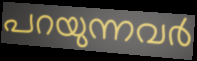
പറയുന്നവർ